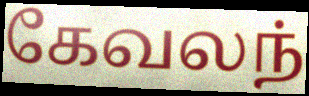
கேவலந்